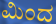
ಮಿಂದ